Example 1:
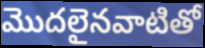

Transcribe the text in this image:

మొదలైనవాటితో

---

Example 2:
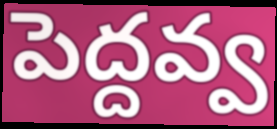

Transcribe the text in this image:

పెద్దవ్వ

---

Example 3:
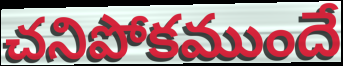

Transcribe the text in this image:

చనిపోకముందే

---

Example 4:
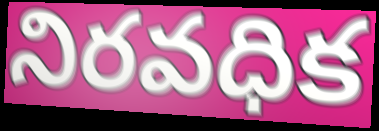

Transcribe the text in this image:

నిరవధిక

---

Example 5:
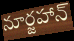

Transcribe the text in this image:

నూర్జహాన్